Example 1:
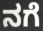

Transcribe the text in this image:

ನಗೆ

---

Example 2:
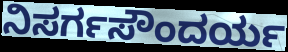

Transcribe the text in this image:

ನಿಸರ್ಗಸೌಂದರ್ಯ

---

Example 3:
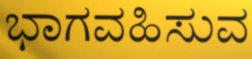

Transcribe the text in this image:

ಭಾಗವಹಿಸುವ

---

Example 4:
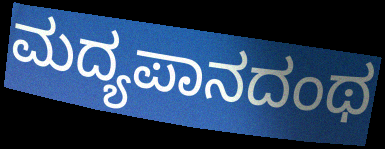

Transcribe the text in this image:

ಮದ್ಯಪಾನದಂಥ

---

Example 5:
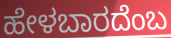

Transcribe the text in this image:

ಹೇಳಬಾರದೆಂಬ